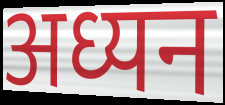
अध्यन